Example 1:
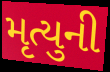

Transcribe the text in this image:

મૃત્યુની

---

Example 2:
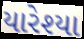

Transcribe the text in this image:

યારેશ્યા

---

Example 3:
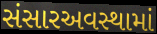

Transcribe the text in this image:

સંસારઅવસ્થામાં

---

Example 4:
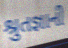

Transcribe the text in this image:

શ્રુતજ્ઞાની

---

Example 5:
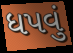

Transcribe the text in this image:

ધપવું